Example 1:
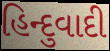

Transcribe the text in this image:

હિન્દુવાદી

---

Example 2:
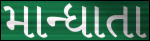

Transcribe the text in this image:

માન્ધાતા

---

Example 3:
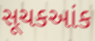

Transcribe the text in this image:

સૂચકઆંક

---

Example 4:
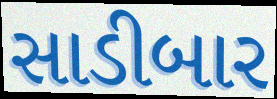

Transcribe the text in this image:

સાડીબાર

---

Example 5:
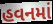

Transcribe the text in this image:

હવનમાં